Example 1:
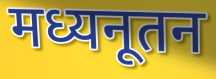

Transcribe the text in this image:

मध्यनूतन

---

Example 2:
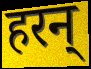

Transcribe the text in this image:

हरन्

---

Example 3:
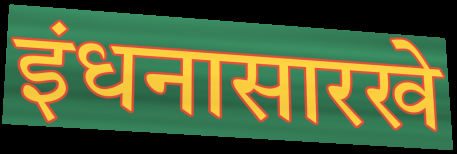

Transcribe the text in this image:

इंधनासारखे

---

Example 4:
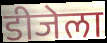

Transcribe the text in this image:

डीजेला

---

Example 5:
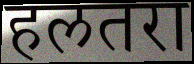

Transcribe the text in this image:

हलतरा